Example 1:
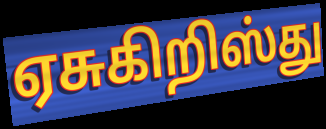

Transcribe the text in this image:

ஏசுகிறிஸ்து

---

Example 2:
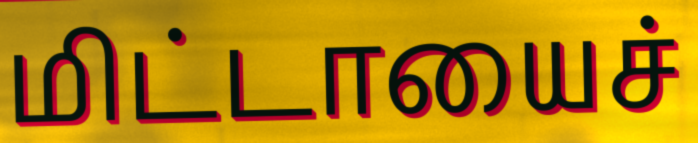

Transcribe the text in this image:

மிட்டாயைச்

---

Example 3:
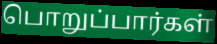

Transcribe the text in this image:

பொறுப்பார்கள்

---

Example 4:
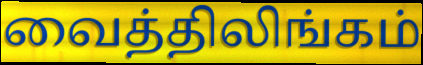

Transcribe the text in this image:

வைத்திலிங்கம்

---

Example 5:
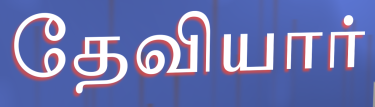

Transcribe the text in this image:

தேவியார்